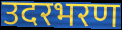
उदरभरण